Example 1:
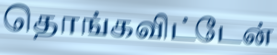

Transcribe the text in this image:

தொங்கவிட்டேன்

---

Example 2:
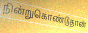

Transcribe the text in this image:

நின்றுகொண்டுதான்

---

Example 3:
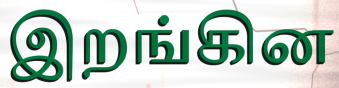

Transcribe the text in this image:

இறங்கின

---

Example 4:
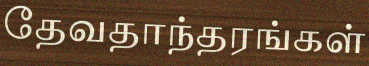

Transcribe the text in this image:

தேவதாந்தரங்கள்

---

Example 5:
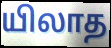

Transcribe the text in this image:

யிலாத